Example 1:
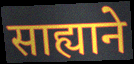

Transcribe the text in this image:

साह्याने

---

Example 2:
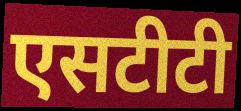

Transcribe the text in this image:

एसटीटी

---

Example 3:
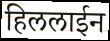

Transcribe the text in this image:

हिललाईन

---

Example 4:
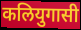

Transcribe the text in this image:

कलियुगासी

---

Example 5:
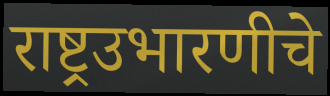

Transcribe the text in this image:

राष्ट्रउभारणीचे